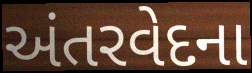
અંતરવેદના